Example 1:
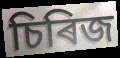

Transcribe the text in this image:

চিৰিজ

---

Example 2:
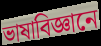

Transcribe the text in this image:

ভাষাবিজ্ঞানে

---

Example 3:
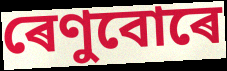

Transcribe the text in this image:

ৰেণুবোৰে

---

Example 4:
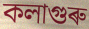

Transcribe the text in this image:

কলাগুৰু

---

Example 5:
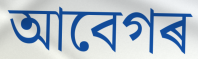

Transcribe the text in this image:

আবেগৰ